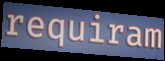
requiram